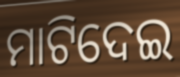
ମାଟିଦେଇ